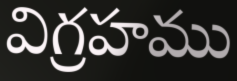
విగ్రహము